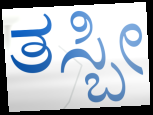
ತಸ್ಬೀ